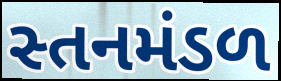
સ્તનમંડળ